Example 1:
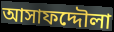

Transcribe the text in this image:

আসাফদ্দৌলা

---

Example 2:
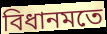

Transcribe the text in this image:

বিধানমতে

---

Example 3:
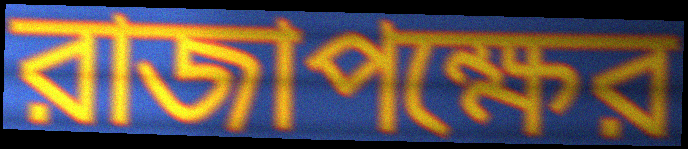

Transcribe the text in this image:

রাজাপক্ষের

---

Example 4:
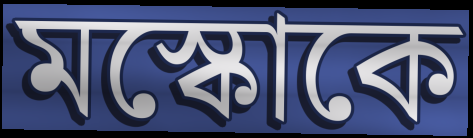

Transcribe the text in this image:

মস্কোকে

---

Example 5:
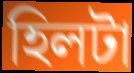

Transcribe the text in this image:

হিলটা